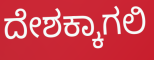
ದೇಶಕ್ಕಾಗಲಿ